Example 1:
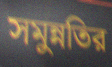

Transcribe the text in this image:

সমুন্নতির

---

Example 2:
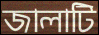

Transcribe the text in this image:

জালাটি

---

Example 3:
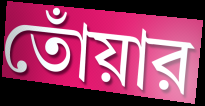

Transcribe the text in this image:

তোঁয়ার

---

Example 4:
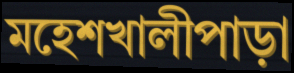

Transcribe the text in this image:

মহেশখালীপাড়া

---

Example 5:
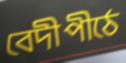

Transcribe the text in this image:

বেদীপীঠে